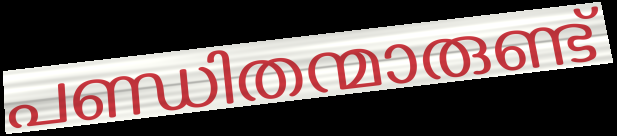
പണ്ഡിതന്മാരുണ്ട്